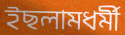
ইছলামধৰ্মী